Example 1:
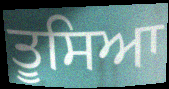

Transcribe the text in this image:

ਤੂਸਿਆ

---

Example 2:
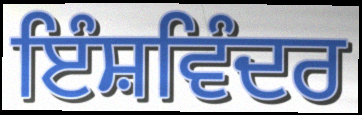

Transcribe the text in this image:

ਇੰਸ਼ਵਿੰਦਰ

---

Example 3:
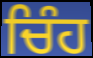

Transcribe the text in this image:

ਚਿੰਹ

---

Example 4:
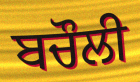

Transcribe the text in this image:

ਬਚੌਲੀ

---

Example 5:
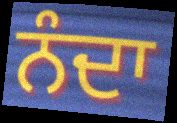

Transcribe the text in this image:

ਨੰਦਾ